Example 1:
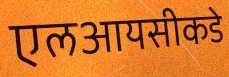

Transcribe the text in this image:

एलआयसीकडे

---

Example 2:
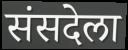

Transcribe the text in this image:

संसदेला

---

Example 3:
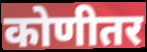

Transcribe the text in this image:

कोणीतर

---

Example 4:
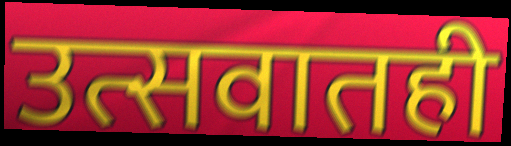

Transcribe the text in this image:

उत्सवातही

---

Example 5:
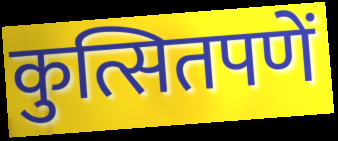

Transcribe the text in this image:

कुत्सितपणें